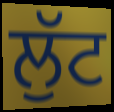
ਲੁੱਟ